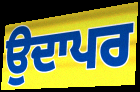
ਉਦਾਪਰ